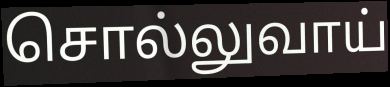
சொல்லுவாய்